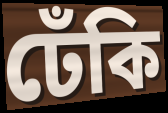
ঢেঁকি